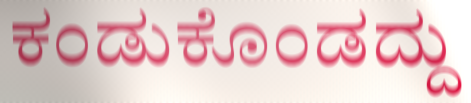
ಕಂಡುಕೊಂಡದ್ದು